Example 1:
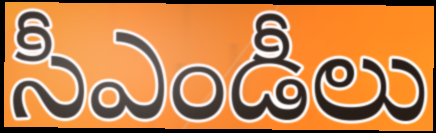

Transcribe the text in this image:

సీఎండీలు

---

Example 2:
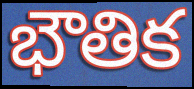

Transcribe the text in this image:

భౌతిక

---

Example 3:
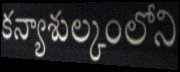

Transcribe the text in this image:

కన్యాశుల్కంలోని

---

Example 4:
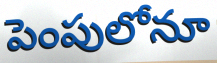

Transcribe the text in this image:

పెంపులోనూ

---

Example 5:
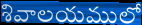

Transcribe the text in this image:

శివాలయములో